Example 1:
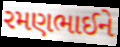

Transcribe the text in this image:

રમણભાઈને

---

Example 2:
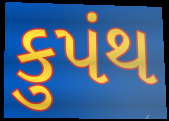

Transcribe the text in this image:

કુપંથ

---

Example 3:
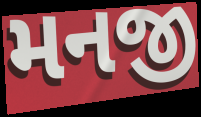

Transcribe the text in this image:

મનજી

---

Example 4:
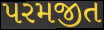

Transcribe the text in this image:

પરમજીત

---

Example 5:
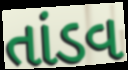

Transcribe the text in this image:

તાંડવ